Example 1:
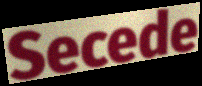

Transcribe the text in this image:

Secede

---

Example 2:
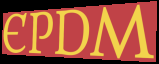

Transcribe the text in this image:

EPDM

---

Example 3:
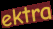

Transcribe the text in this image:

ektra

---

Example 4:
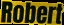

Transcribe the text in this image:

Robert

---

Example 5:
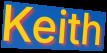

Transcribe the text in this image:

Keith